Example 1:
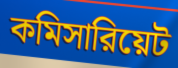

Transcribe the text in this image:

কমিসারিয়েট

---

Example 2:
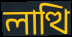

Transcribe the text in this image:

লাত্থি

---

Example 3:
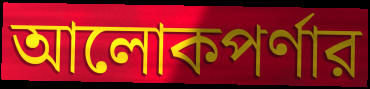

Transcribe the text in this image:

আলোকপর্ণার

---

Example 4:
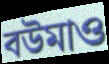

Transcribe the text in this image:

বউমাও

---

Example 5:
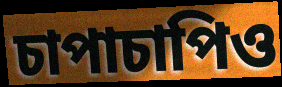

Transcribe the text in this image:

চাপাচাপিও